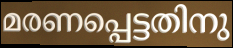
മരണപ്പെട്ടതിനു